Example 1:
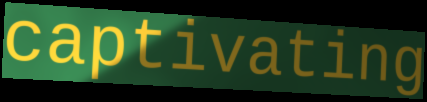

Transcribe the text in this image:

captivating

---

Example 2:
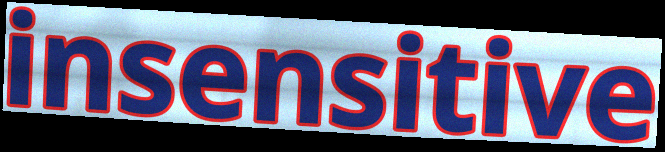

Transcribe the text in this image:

insensitive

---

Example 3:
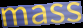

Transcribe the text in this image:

mass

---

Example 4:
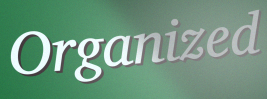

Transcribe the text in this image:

Organized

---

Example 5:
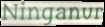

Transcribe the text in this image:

Ninganur